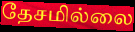
தேசமில்லை